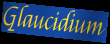
Glaucidium